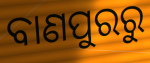
ବାଣପୁରରୁ